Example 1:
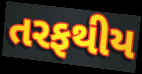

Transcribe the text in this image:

તરફથીય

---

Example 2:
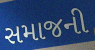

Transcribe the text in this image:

સમાજની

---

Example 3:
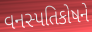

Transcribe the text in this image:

વનસ્પતિકોષને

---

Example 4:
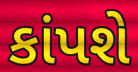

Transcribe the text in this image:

કાંપશે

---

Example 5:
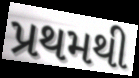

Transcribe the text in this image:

પ્રથમથી